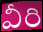
వీరి